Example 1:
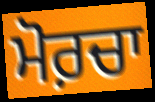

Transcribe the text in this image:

ਮੋਰ਼ਚਾ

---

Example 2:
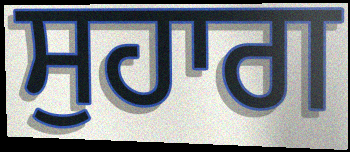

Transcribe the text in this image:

ਸੁਹਾਗ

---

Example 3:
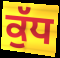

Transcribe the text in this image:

ਕੁੱਧ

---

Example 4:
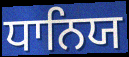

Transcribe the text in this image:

ਧਾਨਿਯ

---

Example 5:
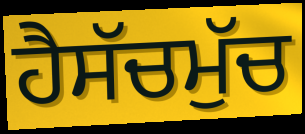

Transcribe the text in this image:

ਹੈਸੱਚਮੁੱਚ